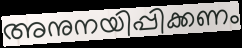
അനുനയിപ്പിക്കണം